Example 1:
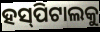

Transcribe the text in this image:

ହସ୍‌ପିଟାଲକୁ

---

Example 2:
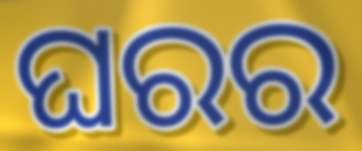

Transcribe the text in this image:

ଘରର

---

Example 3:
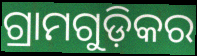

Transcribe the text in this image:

ଗ୍ରାମଗୁଡ଼ିକର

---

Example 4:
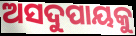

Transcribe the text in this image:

ଅସଦୁପାୟକୁ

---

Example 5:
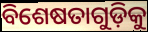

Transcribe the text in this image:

ବିଶେଷତାଗୁଡ଼ିକୁ